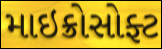
માઇક્રોસોફ્ટ